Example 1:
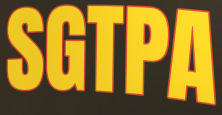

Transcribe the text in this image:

SGTPA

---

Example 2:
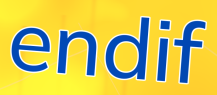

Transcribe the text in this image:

endif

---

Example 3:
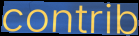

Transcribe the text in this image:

contrib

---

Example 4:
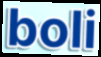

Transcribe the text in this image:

boli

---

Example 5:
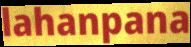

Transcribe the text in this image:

lahanpana